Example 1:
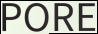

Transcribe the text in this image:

PORE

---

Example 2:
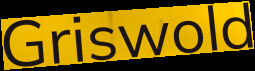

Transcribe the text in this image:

Griswold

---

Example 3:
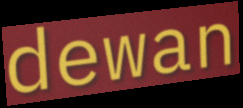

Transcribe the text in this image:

dewan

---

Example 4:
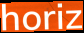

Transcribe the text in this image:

horiz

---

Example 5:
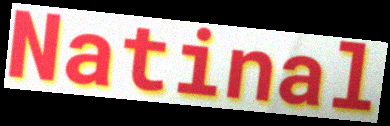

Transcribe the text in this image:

Natinal